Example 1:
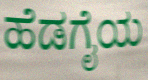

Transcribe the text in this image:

ಹೆಡಗೈಯ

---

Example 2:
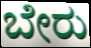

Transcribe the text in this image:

ಬೇರು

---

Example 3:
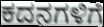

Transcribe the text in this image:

ಕದನಗಳಿಗೆ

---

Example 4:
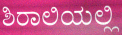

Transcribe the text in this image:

ಶಿರಾಲಿಯಲ್ಲಿ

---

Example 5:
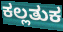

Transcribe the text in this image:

ಕಲ್ಲತುಕ